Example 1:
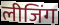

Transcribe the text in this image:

लीजिंग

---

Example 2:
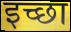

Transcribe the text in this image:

इच्छा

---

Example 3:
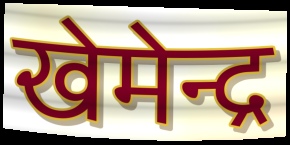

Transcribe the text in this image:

खेमेन्द्र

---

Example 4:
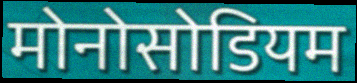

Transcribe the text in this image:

मोनोसोडियम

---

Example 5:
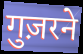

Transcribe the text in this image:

गुज़रने